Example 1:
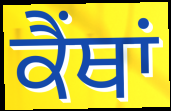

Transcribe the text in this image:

ਕੈਂਥਾਂ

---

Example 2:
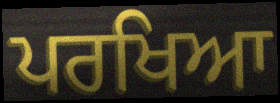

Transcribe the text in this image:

ਪਰਖਿਆ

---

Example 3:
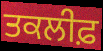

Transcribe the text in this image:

ਤਕਲੀਫ਼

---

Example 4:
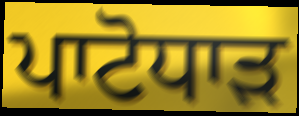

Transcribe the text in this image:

ਪਾਟੋਧਾੜ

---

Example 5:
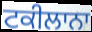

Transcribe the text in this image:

ਟਕੀਲਾਨਾ